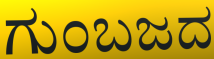
ಗುಂಬಜದ